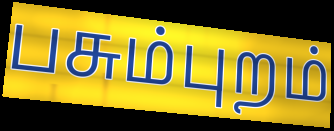
பசும்புறம்